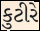
કુટીરે